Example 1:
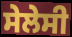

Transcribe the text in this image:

ਸੇਲੇਸੀ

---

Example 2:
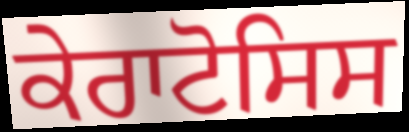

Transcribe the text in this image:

ਕੇਰਾਟੋਸਿਸ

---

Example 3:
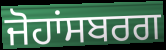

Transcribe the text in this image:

ਜੋਹਾਂਸਬਰਗ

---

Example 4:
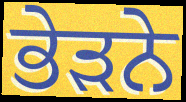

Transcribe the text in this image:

ਭੇੜਨੇ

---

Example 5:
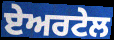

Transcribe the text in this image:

ਏਅਰਟੇਲ